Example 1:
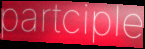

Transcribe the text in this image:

partciple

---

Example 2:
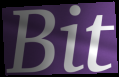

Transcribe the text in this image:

Bit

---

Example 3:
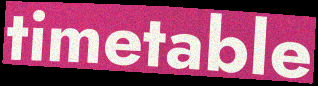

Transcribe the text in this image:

timetable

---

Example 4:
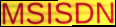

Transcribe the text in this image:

MSISDN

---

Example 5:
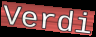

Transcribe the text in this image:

Verdi